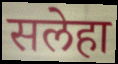
सलेहा